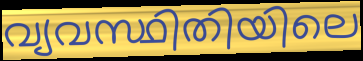
വ്യവസ്ഥിതിയിലെ